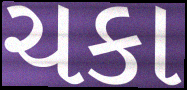
ચકા